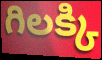
గిలక్కి